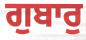
ਗੁਬਾਰੁ